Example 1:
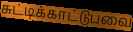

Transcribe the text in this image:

சுட்டிக்காட்டுபவை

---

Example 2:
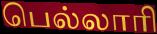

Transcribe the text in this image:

பெல்லாரி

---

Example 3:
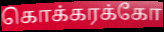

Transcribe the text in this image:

கொக்கரக்கோ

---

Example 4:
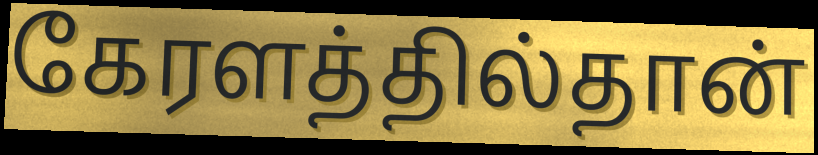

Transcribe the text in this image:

கேரளத்தில்தான்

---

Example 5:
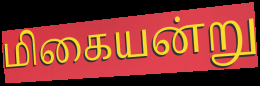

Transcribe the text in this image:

மிகையன்று